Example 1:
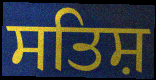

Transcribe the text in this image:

ਸਤਿਸ਼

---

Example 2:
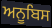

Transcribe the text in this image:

ਅਨੂਬਿਸ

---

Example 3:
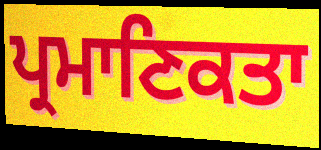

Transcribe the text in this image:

ਪ੍ਰਮਾਣਿਕਤਾ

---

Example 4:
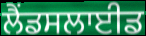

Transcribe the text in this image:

ਲੈਂਡਸਲਾਈਡ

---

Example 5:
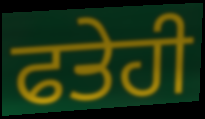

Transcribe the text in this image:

ਫਤੇਹੀ